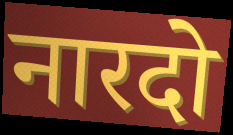
नारदो